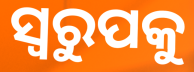
ସ୍ଵରୁପକୁ